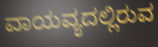
ವಾಯವ್ಯದಲ್ಲಿರುವ